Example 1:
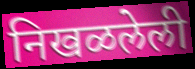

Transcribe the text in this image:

निखळलेली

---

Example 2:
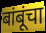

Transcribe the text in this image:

बांबूंचा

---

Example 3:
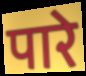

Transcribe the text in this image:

पारे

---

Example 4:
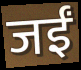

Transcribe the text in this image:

जईं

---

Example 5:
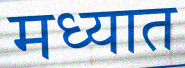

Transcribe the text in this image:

मध्यात